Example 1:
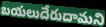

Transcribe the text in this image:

బయలుదేరుదామని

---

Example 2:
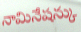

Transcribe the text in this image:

నామినేషన్కు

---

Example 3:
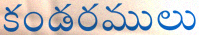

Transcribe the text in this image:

కండరములు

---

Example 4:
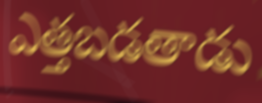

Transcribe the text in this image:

ఎత్తబడతాడు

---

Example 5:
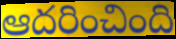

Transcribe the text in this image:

ఆదరించింది